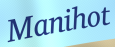
Manihot